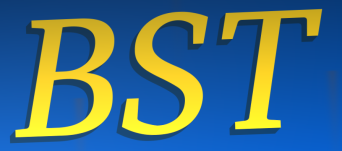
BST